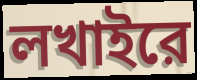
লখাইরে